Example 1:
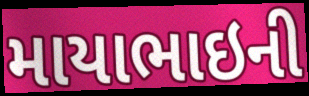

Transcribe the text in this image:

માયાભાઇની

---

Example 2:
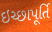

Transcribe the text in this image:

ઇચ્છાપૂર્તિ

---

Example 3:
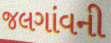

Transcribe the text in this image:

જલગાંવની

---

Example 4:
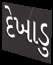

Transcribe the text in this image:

દેખાડુ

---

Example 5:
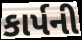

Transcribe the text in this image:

કાર્પની